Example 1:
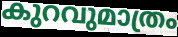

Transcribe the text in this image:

കുറവുമാത്രം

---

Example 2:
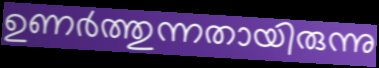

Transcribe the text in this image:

ഉണർത്തുന്നതായിരുന്നു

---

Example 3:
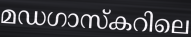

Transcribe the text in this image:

മഡഗാസ്കറിലെ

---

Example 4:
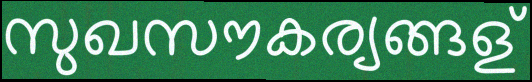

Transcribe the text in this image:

സുഖസൗകര്യങ്ങള്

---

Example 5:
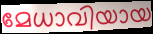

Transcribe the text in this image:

മേധാവിയായ